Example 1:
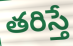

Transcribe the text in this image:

తరిస్తే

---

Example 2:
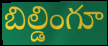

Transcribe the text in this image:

బిల్డింగూ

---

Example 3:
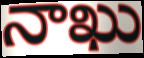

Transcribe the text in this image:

నాఖు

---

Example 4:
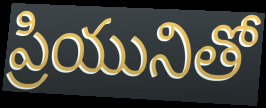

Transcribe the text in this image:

ప్రియునితో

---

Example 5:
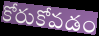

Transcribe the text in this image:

కోరుకోవడం